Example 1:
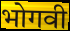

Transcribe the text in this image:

भोगवी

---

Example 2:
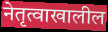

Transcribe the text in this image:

नेतृत्वाखालील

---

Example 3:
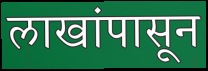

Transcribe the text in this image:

लाखांपासून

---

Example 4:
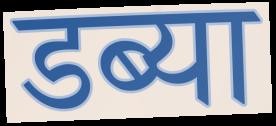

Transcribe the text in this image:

डब्या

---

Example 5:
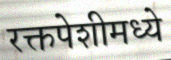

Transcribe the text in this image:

रक्तपेशीमध्ये